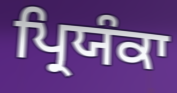
ਪ੍ਰਿਯੰਕਾ